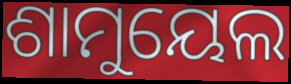
ଶାମୁୟେଲ